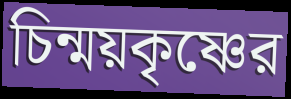
চিন্ময়কৃষ্ণের